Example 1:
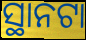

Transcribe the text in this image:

ସ୍ଥାନଟା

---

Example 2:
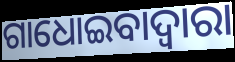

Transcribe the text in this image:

ଗାଧୋଇବାଦ୍ଵାରା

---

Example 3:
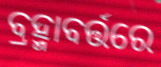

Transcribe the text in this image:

ବ୍ରହ୍ମାବର୍ତ୍ତରେ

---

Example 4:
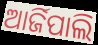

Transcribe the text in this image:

ଆର୍ଜିପାଲି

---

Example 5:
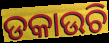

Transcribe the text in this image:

ଡକାଉଚି